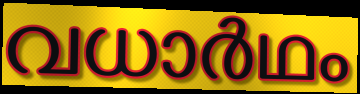
വധാർഥം